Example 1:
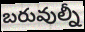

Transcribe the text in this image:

బరువుల్నీ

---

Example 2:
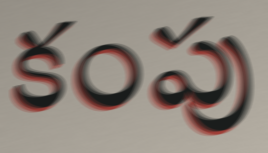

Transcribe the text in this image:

కంపు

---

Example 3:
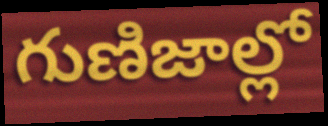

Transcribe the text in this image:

గుణిజాల్లో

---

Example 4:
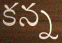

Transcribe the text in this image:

కన్న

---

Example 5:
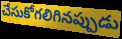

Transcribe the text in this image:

చేసుకోగలిగినప్పుడు